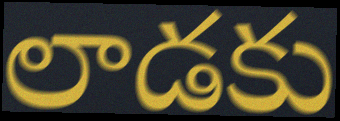
లాడకు